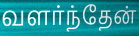
வளர்ந்தேன்